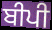
ਬੀਪੀ